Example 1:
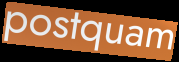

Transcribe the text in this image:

postquam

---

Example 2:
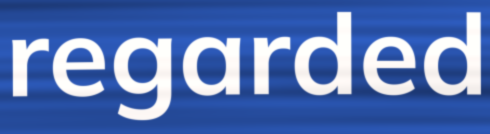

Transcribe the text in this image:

regarded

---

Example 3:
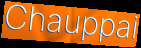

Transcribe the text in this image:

Chauppai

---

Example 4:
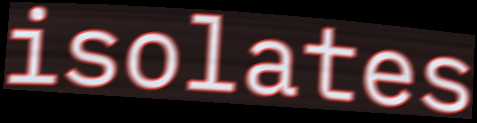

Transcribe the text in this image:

isolates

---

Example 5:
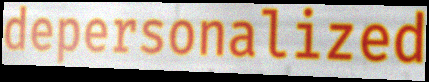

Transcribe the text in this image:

depersonalized